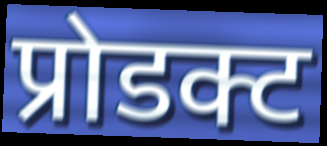
प्रोडक्ट